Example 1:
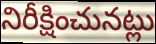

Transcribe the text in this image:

నిరీక్షించునట్లు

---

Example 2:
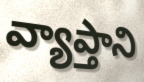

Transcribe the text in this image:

వ్యాప్తాని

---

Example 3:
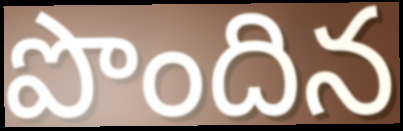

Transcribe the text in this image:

పొందిన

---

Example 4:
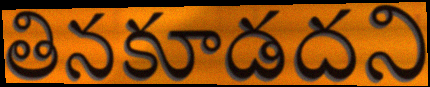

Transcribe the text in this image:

తినకూడదని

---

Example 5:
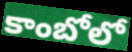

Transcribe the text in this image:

కాంబోలో